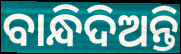
ବାନ୍ଧିଦିଅନ୍ତି